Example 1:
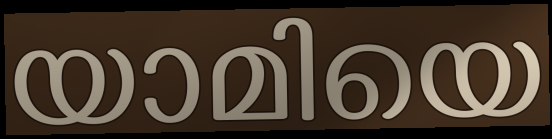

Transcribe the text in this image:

യാമിയെ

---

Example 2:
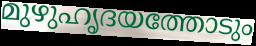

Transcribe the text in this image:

മുഴുഹൃദയത്തോടും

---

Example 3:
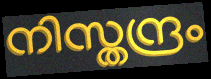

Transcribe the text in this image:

നിസ്തന്ദ്രം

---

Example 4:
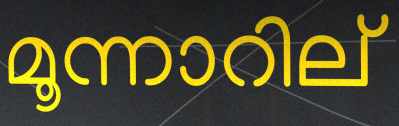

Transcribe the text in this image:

മൂന്നാറില്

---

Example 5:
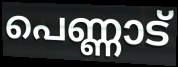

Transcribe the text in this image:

പെണ്ണാട്